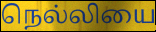
நெல்லியை